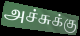
அச்சுக்கு